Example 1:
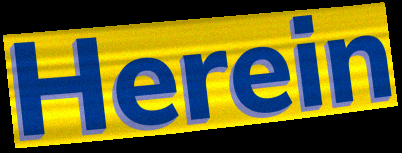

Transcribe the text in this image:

Herein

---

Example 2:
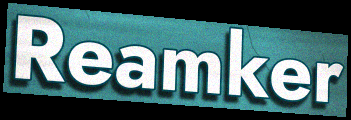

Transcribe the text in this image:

Reamker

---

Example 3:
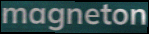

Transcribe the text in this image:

magneton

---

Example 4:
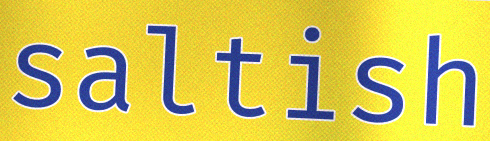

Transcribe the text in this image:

saltish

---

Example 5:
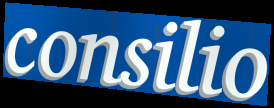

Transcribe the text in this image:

consilio